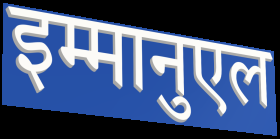
इम्मानुएल